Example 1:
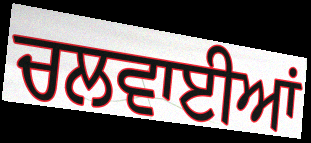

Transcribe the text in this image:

ਚਲਵਾਈਆਂ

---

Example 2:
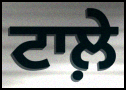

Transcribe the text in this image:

ਟਾਲ਼ੇ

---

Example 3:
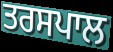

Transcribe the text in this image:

ਤਰਸਪਾਲ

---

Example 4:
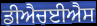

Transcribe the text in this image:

ਡੀਐਚਈਐਸ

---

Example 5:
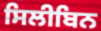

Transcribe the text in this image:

ਸਿਲੀਬਿਨ